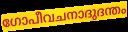
ഗോപീവചനാദുദന്തം